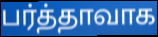
பர்த்தாவாக